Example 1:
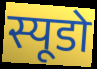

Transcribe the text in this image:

स्यूडो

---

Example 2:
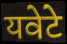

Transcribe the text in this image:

यवेटे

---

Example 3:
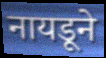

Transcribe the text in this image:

नायडूने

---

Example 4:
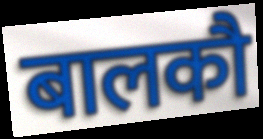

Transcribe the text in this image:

बालकौ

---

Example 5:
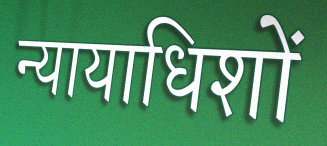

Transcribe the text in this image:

न्यायाधिशों